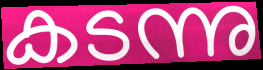
കടന്നു